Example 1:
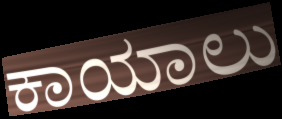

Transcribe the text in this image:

ಕಾಯಾಲು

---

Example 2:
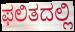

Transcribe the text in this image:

ಫಲಿತದಲ್ಲಿ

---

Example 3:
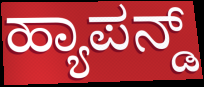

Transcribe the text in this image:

ಹ್ಯಾಪನ್ಡ್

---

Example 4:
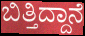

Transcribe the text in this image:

ಬಿತ್ತಿದ್ದಾನೆ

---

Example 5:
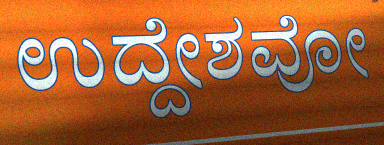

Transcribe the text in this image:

ಉದ್ದೇಶವೋ